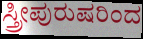
ಸ್ತ್ರೀಪುರುಷರಿಂದ